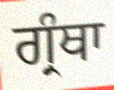
ਗ੍ਰੰਥਾ